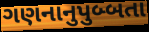
ગણનાનુપુબ્બતા